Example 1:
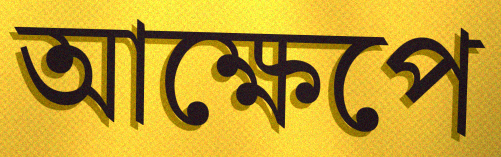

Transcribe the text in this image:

আক্ষেপে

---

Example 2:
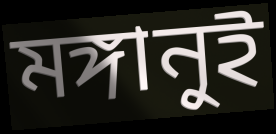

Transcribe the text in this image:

মঙ্গানুই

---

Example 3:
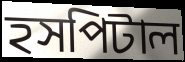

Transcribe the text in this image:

হসপিটাল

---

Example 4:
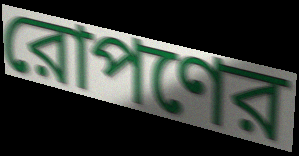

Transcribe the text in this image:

রোপণের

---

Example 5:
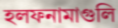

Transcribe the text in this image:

হলফনামাগুলি